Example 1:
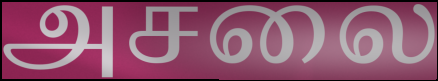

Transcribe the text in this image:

அசலை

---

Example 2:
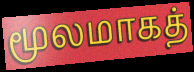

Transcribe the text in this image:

மூலமாகத்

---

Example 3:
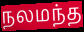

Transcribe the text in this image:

நலமந்த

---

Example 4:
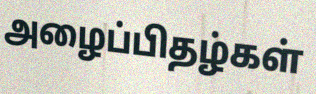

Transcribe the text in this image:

அழைப்பிதழ்கள்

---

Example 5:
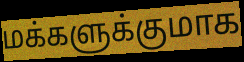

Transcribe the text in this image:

மக்களுக்குமாக